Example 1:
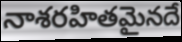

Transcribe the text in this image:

నాశరహితమైనదే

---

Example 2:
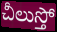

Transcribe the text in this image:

చీలుస్తో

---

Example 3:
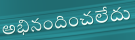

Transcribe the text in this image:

అభినందించలేదు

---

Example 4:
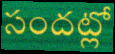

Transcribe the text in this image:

సందట్లో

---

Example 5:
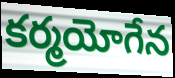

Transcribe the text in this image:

కర్మయోగేన